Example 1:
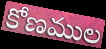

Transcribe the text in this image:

కోణముల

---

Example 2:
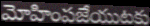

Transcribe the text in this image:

మోహింపజేయుటకు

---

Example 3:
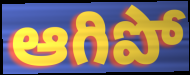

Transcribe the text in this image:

ఆగిపో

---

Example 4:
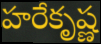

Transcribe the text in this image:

హరేకృష్ణ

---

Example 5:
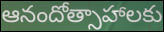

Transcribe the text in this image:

ఆనందోత్సాహాలకు